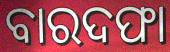
ବାରଦଫା